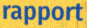
rapport